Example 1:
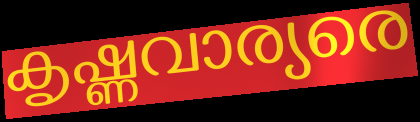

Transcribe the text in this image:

കൃഷ്ണവാര്യരെ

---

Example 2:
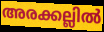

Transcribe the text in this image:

അരക്കല്ലിൽ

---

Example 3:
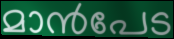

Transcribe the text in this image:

മാൻപേട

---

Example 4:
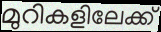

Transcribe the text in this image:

മുറികളിലേക്ക്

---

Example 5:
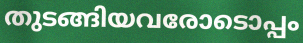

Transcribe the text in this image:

തുടങ്ങിയവരോടൊപ്പം